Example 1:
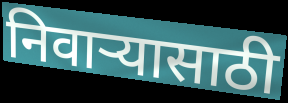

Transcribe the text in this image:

निवाऱ्यासाठी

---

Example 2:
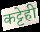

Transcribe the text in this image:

कट्टेही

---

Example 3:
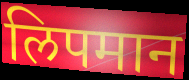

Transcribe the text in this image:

लिपमान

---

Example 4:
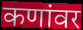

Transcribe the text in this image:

कणांवर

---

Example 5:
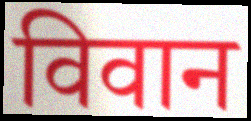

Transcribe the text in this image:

विवान